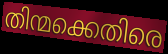
തിന്മക്കെതിരെ